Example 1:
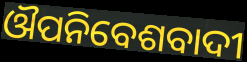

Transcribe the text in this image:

ଔପନିବେଶବାଦୀ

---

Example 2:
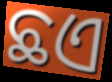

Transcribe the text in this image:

ଛଏ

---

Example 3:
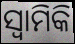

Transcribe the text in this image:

ସ୍ୱାମିକି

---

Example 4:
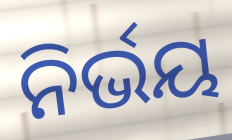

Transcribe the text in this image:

ନିର୍ଭୟ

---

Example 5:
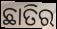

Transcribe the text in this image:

ଛାତିର